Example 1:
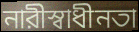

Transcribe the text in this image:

নারীস্বাধীনতা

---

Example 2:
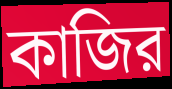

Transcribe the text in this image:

কাজির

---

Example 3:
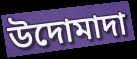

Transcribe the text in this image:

উদোমাদা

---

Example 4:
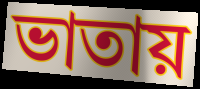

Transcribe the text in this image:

ভাতায়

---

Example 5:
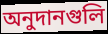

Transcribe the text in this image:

অনুদানগুলি